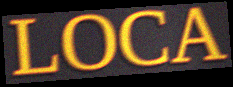
LOCA